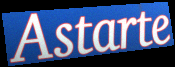
Astarte